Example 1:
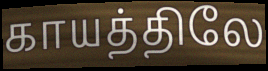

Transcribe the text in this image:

காயத்திலே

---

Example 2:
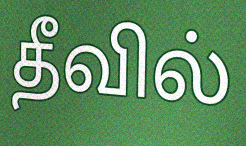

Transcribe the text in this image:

தீவில்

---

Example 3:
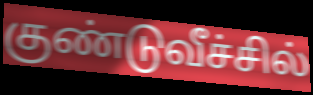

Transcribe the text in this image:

குண்டுவீச்சில்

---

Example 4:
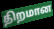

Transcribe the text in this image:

திறமான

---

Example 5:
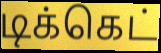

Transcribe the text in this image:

டிக்கெட்